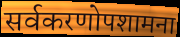
सर्वकरणोपशामना